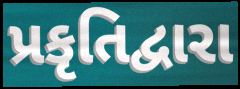
પ્રકૃતિદ્વારા